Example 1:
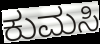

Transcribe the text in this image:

ಕುಮಸಿ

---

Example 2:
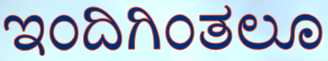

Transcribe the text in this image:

ಇಂದಿಗಿಂತಲೂ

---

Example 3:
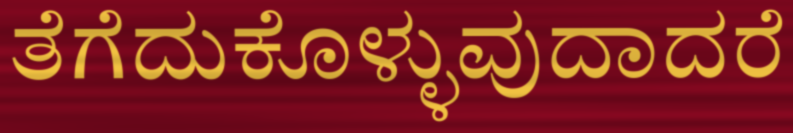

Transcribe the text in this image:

ತೆಗೆದುಕೊಳ್ಳುವುದಾದರೆ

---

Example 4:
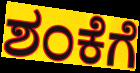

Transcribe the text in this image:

ಶಂಕೆಗೆ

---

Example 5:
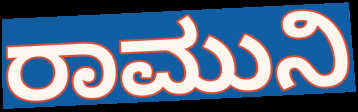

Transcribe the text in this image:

ರಾಮುನಿ